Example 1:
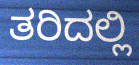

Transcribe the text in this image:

ತರಿದಲ್ಲಿ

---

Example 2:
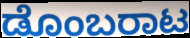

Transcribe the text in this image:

ಡೊಂಬರಾಟ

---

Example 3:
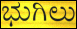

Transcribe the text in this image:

ಭುಗಿಲು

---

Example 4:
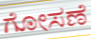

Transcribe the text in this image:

ಗೋಸಣೆ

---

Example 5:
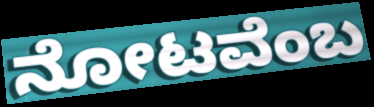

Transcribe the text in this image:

ನೋಟವೆಂಬ